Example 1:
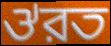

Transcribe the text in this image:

ঔরত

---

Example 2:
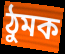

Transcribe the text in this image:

ঠুমক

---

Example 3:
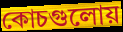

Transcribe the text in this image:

কোচগুলোয়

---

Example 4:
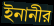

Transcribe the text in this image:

ইনানীর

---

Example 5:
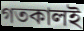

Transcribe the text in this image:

গতকালই